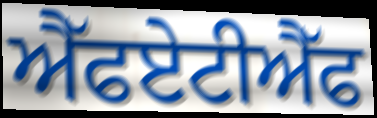
ਐੱਫਏਟੀਐੱਫ